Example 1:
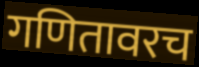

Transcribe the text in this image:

गणितावरच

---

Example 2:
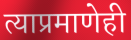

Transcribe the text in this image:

त्याप्रमाणेही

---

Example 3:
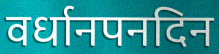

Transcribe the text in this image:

वर्धानपनदिन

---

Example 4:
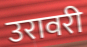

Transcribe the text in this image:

उरावरी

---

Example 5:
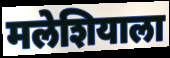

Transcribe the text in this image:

मलेशियाला